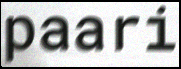
paari